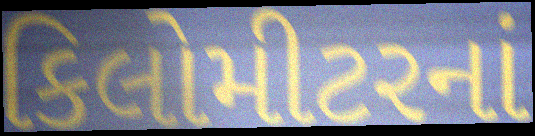
કિલોમીટરનાં